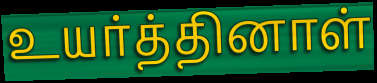
உயர்த்தினாள்